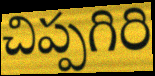
చిప్పగిరి